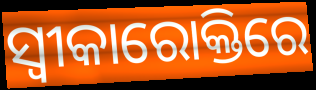
ସ୍ଵୀକାରୋକ୍ତିରେ